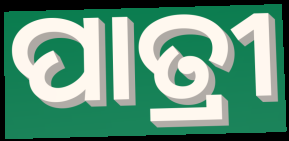
ପାତ୍ରୀ